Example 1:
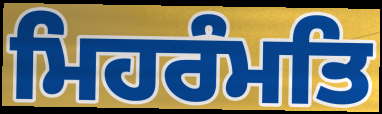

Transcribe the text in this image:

ਮਿਹਰੰਮਤਿ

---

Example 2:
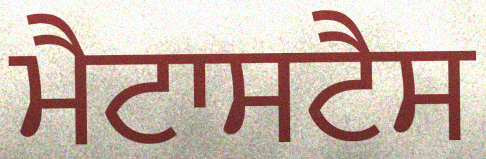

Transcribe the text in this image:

ਮੈਟਾਸਟੈਸ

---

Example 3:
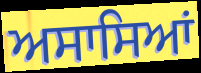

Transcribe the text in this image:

ਅਸਾਸਿਆਂ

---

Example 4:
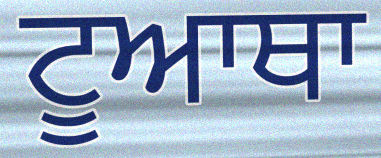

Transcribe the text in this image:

ਟੂਆਥਾ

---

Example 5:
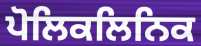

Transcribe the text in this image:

ਪੋਲਿਕਲਿਨਿਕ